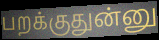
பறக்குதுன்னு